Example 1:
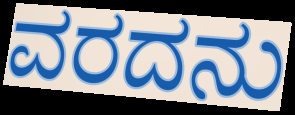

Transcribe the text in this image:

ವರದನು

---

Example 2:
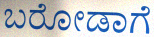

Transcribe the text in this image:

ಬರೋಡಾಗೆ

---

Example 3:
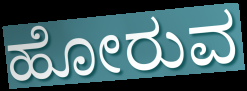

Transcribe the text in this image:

ಹೋರುವ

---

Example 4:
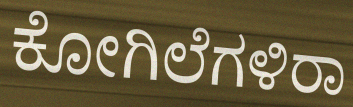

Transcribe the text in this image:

ಕೋಗಿಲೆಗಳಿರಾ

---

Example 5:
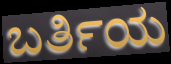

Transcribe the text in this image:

ಬರ್ತಿಯ